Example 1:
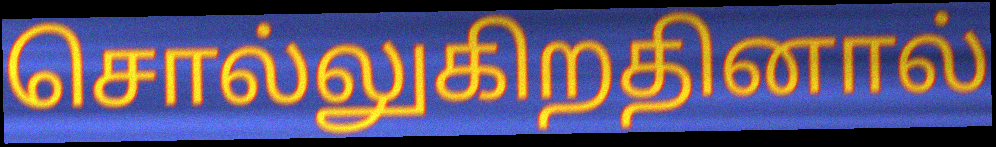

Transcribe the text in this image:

சொல்லுகிறதினால்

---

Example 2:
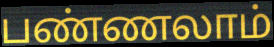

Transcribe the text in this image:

பண்ணலாம்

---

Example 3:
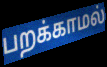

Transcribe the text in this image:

பறக்காமல்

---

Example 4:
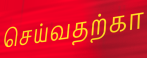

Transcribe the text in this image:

செய்வதற்கா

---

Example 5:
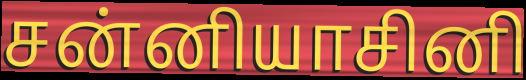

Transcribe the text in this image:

சன்னியாசினி